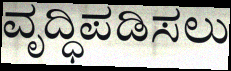
ವೃದ್ಧಿಪಡಿಸಲು